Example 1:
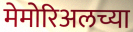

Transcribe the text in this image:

मेमोरिअलच्या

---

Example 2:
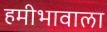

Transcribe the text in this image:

हमीभावाला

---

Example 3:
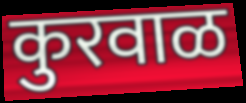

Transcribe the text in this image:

कुरवाळ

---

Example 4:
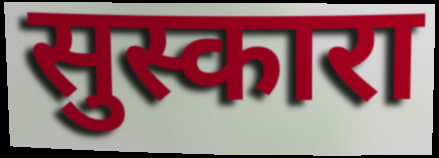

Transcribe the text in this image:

सुस्कारा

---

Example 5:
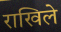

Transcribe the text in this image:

राखिले